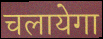
चलायेगा